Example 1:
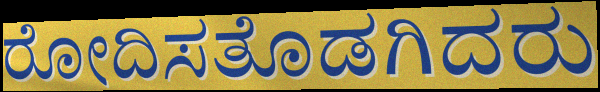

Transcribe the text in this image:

ರೋದಿಸತೊಡಗಿದರು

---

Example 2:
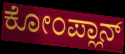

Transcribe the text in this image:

ಕೋಂಪ್ಲಾನ್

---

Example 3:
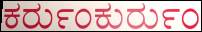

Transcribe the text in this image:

ಕರ್ರುಂಕುರ್ರುಂ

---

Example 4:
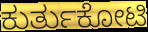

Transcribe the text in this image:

ಕುರ್ತುಕೋಟಿ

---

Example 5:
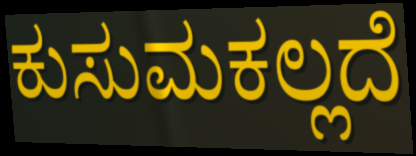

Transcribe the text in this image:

ಕುಸುಮಕಲ್ಲದೆ